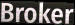
Broker